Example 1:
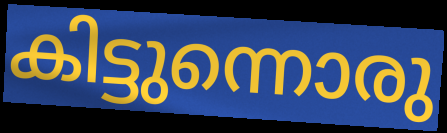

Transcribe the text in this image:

കിട്ടുന്നൊരു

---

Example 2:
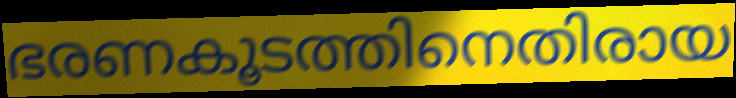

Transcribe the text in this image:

ഭരണകൂടത്തിനെതിരായ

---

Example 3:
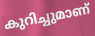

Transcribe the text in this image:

കുറിച്ചുമാണ്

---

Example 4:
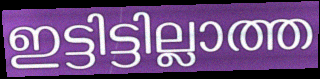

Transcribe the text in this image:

ഇട്ടിട്ടില്ലാത്ത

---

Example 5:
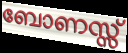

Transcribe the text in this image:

ബോണസ്സ്